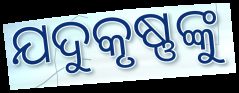
ଯଦୁକୃଷ୍ଣଙ୍କୁ